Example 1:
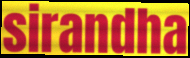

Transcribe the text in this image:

sirandha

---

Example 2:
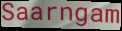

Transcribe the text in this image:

Saarngam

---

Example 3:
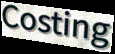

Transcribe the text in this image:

Costing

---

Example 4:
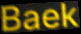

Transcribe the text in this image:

Baek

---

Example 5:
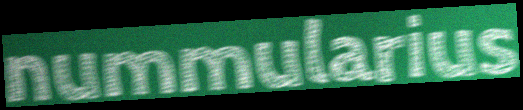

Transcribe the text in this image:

nummularius